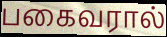
பகைவரால்